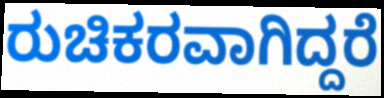
ರುಚಿಕರವಾಗಿದ್ದರೆ